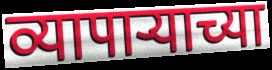
व्यापाऱ्याच्या